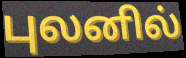
புலனில்